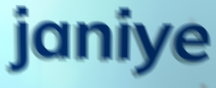
janiye